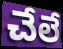
చేలే